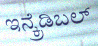
ಇನ್ಕ್ರೆಡಿಬಲ್